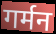
गर्मन